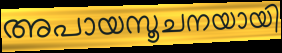
അപായസൂചനയായി